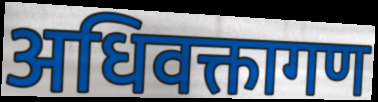
अधिवक्तागण